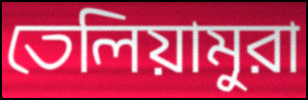
তেলিয়ামুরা